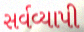
સર્વવ્યાપી